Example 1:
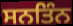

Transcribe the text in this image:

ਸਨਤਿੰਨ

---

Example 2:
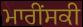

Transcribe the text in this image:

ਮਾਰੀੰਸਕੀ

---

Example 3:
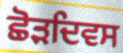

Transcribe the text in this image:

ਛੋੜਦਿਵਸ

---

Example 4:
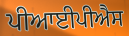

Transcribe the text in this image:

ਪੀਆਈਪੀਐਸ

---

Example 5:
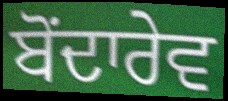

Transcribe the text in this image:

ਬੋਂਦਾਰੇਵ